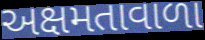
અક્ષમતાવાળા